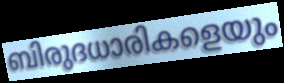
ബിരുദധാരികളെയും